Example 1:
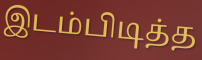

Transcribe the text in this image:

இடம்பிடித்த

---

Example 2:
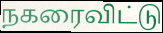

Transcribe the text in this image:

நகரைவிட்டு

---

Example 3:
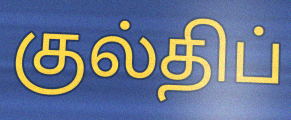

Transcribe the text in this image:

குல்திப்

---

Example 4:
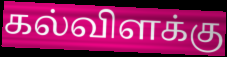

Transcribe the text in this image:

கல்விளக்கு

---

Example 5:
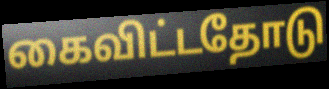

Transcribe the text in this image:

கைவிட்டதோடு